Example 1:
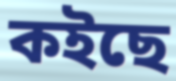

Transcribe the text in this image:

কইছে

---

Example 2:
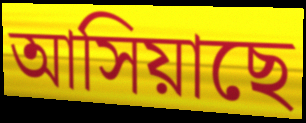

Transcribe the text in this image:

আসিয়াছে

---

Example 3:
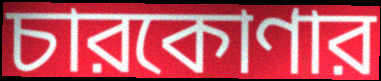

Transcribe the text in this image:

চারকোণার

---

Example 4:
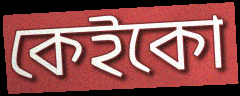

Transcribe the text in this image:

কেইকো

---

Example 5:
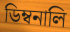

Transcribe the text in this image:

ডিম্বনালি